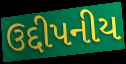
ઉદ્દીપનીય